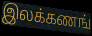
இலக்கணங்